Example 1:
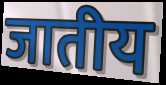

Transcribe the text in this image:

जातीय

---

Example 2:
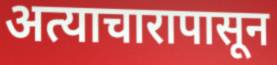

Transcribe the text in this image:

अत्याचारापासून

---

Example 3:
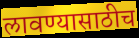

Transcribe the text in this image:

लावण्यासाठीच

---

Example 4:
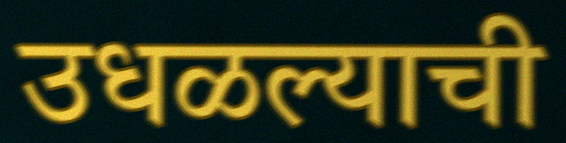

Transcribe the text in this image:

उधळल्याची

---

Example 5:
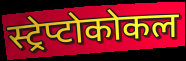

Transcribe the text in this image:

स्ट्रेप्टोकोकल